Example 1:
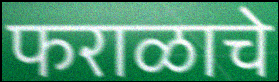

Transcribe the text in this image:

फराळाचे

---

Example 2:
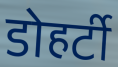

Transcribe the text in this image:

डोहर्टी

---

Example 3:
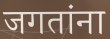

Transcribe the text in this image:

जगतांना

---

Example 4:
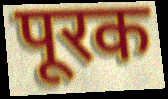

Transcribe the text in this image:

पूरक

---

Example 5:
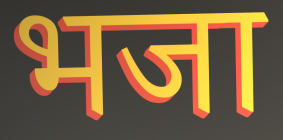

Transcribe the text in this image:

भजा